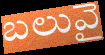
బలువై